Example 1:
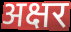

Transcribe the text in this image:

अक्षर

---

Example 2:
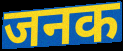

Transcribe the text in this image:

जनक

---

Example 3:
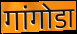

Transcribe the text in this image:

गांगोडा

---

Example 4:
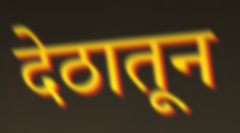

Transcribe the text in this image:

देठातून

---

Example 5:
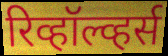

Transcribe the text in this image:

रिव्हॉल्व्हर्स